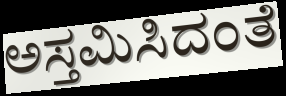
ಅಸ್ತಮಿಸಿದಂತೆ